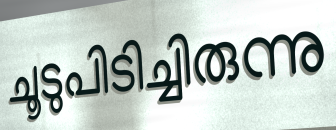
ചൂടുപിടിച്ചിരുന്നു